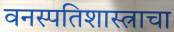
वनस्पतिशास्त्राचा